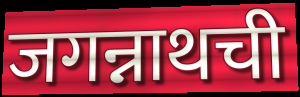
जगन्नाथची